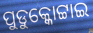
ପୁଡୁକ୍କୋଟ୍ଟାଇ